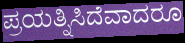
ಪ್ರಯತ್ನಿಸಿದೆವಾದರೂ